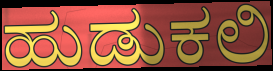
ಹುಡುಕಲಿ